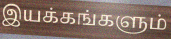
இயக்கங்களும்